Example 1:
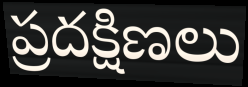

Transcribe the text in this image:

ప్రదక్షిణలు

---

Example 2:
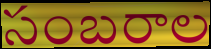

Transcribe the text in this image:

సంబరాల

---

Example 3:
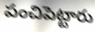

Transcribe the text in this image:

పంచిపెట్టారు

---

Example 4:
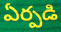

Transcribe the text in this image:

ఏర్పడి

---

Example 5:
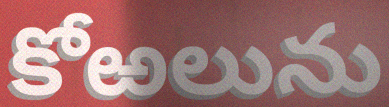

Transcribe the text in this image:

కోఱలును